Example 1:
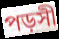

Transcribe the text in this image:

পড়সী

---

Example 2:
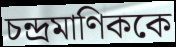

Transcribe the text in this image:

চন্দ্রমাণিককে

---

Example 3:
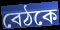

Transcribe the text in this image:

বেঠকে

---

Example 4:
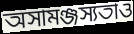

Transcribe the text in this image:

অসামঞ্জস্যতাও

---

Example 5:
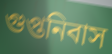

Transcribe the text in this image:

গুপ্তনিবাস